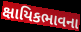
ક્ષાયિકભાવના